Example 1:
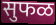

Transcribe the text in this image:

सुफळ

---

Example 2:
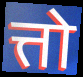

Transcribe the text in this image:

त्तो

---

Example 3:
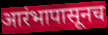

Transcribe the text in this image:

आरंभापासूनच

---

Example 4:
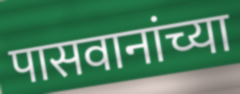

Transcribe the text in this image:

पासवानांच्या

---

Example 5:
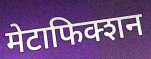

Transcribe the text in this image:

मेटाफिक्शन